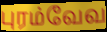
புரம்வேவ